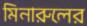
মিনারুলের